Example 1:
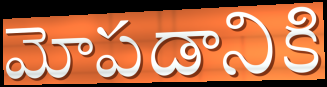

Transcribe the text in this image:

మోపడానికి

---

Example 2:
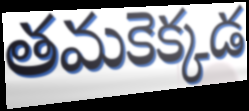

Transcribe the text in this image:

తమకెక్కడ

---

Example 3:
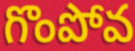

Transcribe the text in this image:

గొంపోవ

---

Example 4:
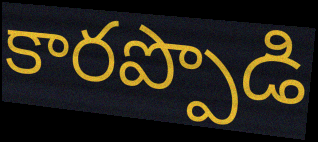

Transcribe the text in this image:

కారప్పొడి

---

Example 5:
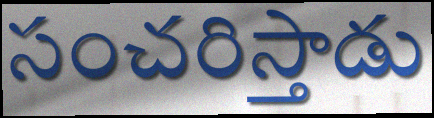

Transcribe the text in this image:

సంచరిస్తాడు